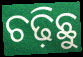
ଚଢ଼ିଛୁ